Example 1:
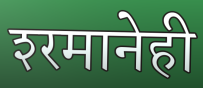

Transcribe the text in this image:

श्रमानेही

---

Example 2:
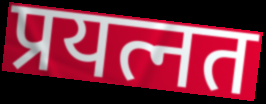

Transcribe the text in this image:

प्रयत्नत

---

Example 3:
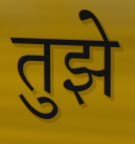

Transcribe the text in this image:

तुझे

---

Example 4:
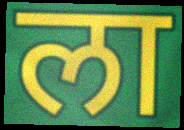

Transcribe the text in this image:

ला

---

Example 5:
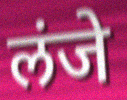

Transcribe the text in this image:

लंजे